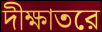
দীক্ষাতরে